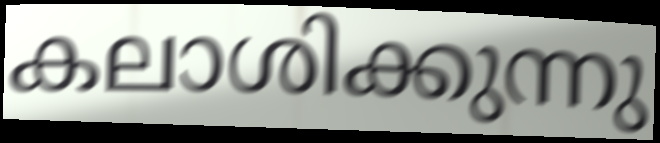
കലാശിക്കുന്നു